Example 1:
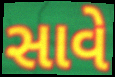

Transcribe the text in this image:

સાવે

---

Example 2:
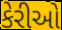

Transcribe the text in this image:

કેરીઓ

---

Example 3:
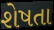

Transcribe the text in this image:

શેષતા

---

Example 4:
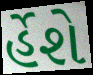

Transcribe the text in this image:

ર્હેશે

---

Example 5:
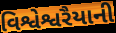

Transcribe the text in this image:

વિશ્વેશ્વરૈયાની